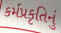
કર્મપ્રકૃતિનું